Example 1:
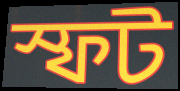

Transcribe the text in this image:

স্ফট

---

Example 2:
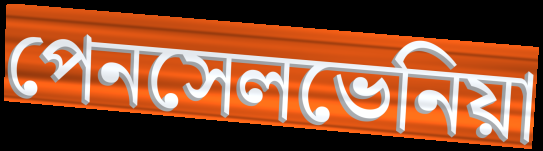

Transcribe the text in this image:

পেনসেলভেনিয়া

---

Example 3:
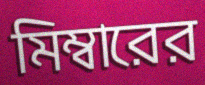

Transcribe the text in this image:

মিম্বারের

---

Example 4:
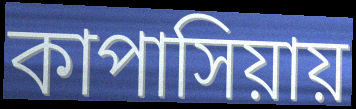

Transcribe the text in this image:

কাপাসিয়ায়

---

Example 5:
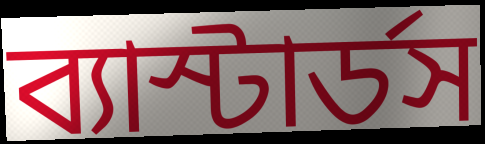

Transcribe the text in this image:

ব্যাস্টার্ডস